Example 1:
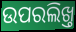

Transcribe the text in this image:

ଉପରଲିଖ୍ତ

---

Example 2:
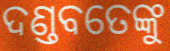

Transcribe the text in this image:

ଦଣ୍ଡବତେଙ୍କୁ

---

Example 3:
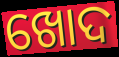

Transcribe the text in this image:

ଖୋଦ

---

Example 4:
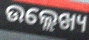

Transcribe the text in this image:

ଉଲ୍ଲେଖ୍ୟ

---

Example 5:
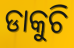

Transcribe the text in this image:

ଡାକୁଚି